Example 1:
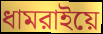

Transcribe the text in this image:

ধামরাইয়ে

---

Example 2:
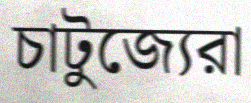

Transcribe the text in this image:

চাটুজ্যেরা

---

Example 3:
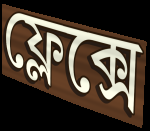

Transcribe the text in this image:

ফ্লেক্সে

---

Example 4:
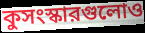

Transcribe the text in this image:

কুসংস্কারগুলোও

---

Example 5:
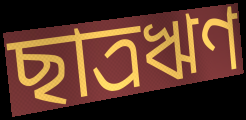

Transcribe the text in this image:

ছাত্রঋণ